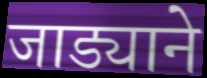
जाड्याने